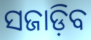
ସଜାଡ଼ିବ